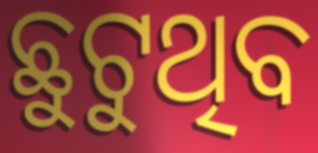
ଛୁଟୁଥିବ